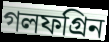
গলফগ্রিন